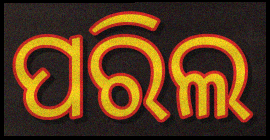
ପରିଲ